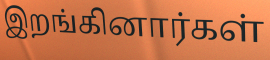
இறங்கினார்கள்